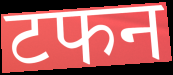
टफन